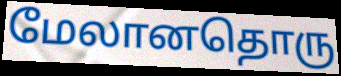
மேலானதொரு